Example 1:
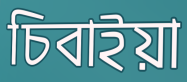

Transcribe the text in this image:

চিবাইয়া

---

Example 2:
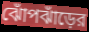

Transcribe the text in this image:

ঝোঁপঝাঁড়ের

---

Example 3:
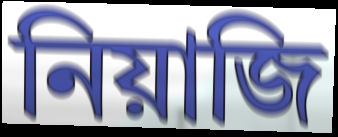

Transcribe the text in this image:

নিয়াজি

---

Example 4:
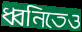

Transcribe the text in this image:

ধ্বনিতেও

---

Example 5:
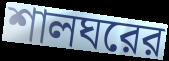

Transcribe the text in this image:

শালঘরের